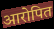
आरोपित